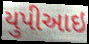
યુપીઆઇ